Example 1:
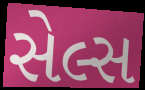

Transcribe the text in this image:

સેલ્સ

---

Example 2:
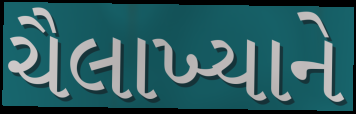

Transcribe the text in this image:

ચૈલાખ્યાને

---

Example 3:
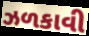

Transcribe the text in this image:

ઝળકાવી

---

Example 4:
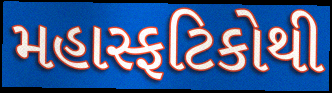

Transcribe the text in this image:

મહાસ્ફટિકોથી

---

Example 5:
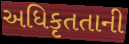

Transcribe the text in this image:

અધિકૃતતાની